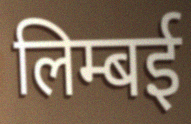
लिम्बई